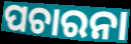
ପଚାରନା